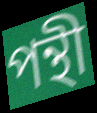
পন্থী